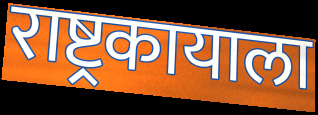
राष्ट्रकायाला